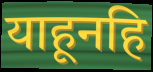
याहूनहि